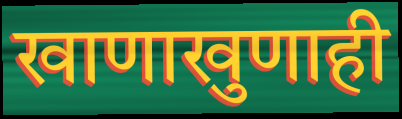
खाणाखुणाही